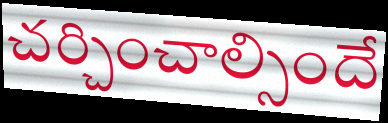
చర్చించాల్సిందే